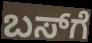
ಬಸ್‍ಗೆ